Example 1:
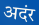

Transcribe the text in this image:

अदंर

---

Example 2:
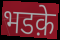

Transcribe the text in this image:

भडक़े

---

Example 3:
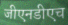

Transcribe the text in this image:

जीएनडीएच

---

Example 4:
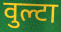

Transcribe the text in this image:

वुल्टा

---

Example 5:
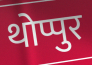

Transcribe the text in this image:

थोप्पुर